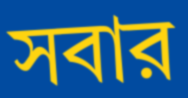
সবার